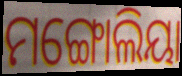
ମଙ୍ଗୋଲିୟା